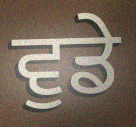
ਵੁਡੇ